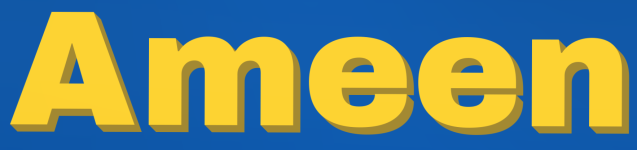
Ameen